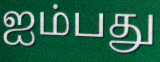
ஐம்பது